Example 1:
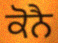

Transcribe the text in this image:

ਕੋਨੈ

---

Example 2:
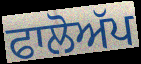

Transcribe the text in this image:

ਫਾਲੋਅੱਪ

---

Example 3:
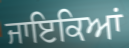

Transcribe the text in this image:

ਜਾਇਕਿਆਂ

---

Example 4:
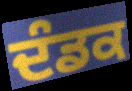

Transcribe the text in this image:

ਦੰਡਕ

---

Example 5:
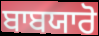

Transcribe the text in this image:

ਬਾਬਯਾਰੋ